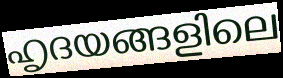
ഹൃദയങ്ങളിലെ